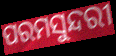
ପରମସୁନ୍ଦରୀ